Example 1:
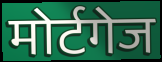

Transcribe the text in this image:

मोर्टगेज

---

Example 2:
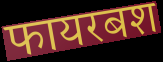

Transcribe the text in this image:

फायरबश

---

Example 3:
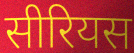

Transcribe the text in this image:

सीरियस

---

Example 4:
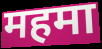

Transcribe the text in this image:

महमा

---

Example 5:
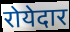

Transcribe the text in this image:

रोयेदार